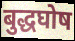
बुद्धघोष